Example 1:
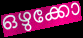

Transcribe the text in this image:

ഒഴുക്കോ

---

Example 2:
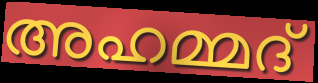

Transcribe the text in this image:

അഹമ്മദ്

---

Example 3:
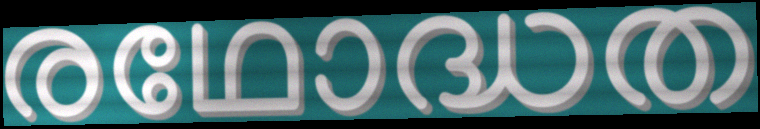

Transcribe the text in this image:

രഥോദ്ധത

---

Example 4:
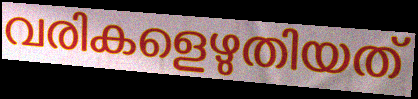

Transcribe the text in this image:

വരികളെഴുതിയത്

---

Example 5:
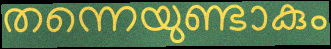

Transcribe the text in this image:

തന്നെയുണ്ടാകും